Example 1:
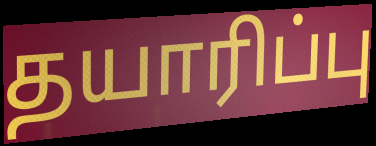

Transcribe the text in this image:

தயாரிப்பு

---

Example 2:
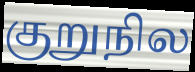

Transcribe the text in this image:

குறுநில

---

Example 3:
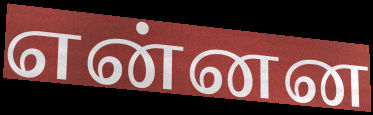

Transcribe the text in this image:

என்னன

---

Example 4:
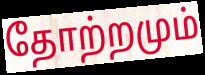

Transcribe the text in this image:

தோற்றமும்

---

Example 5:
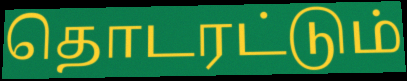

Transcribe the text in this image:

தொடரட்டும்